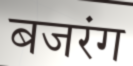
बजरंग